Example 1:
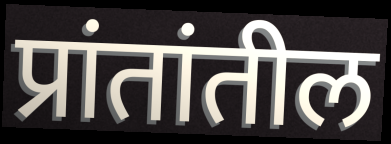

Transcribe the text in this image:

प्रांतांतील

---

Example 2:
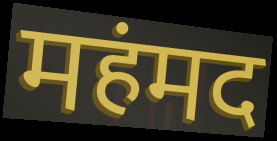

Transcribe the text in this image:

महंमद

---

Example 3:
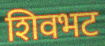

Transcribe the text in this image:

शिवभट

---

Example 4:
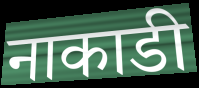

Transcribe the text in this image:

नाकाडी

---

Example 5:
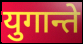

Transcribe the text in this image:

युगान्ते